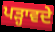
ਪੜ੍ਹਾਵਦੇ